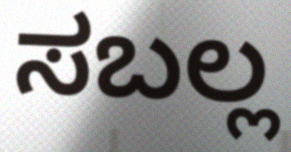
ಸಬಲ್ಲ